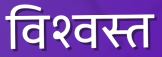
विश्वस्त